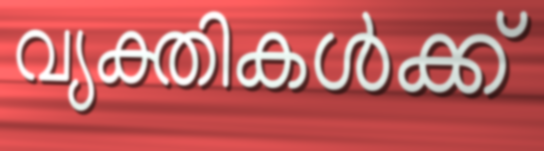
വ്യക്തികൾക്ക്